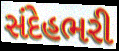
સંદેહભરી